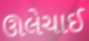
ઊલેચાઈ